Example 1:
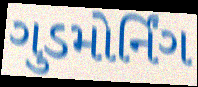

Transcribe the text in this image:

ગુડમોર્નિંગ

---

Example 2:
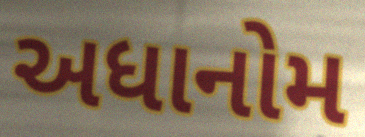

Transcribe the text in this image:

અધાનોમ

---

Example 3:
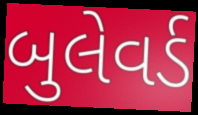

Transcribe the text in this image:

બુલેવર્ડ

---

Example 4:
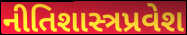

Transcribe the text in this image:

નીતિશાસ્ત્રપ્રવેશ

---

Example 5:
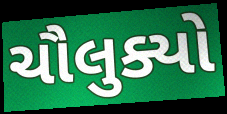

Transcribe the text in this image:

ચૌલુક્યો